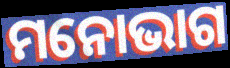
ମନୋଭାଗ